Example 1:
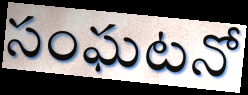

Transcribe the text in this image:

సంఘటనో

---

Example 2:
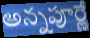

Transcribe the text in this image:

అన్నపూర్ణే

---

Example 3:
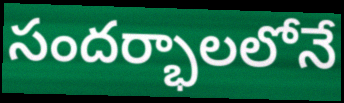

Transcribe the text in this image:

సందర్భాలలోనే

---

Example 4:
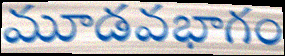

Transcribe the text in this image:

మూడవభాగం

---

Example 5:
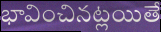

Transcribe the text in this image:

భావించినట్లయితే